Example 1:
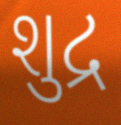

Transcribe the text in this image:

શુદ્ર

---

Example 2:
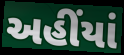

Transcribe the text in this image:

અહીંયાં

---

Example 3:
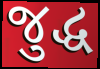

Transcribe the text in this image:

જુદ્ધ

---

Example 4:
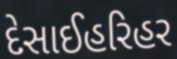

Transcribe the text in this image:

દેસાઈહરિહર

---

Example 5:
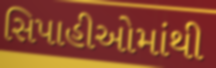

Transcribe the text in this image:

સિપાહીઓમાંથી